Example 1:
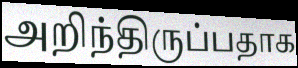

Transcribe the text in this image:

அறிந்திருப்பதாக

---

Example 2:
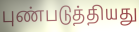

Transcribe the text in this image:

புண்படுத்தியது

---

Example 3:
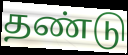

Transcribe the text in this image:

தண்டு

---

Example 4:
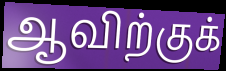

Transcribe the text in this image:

ஆவிற்குக்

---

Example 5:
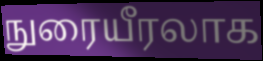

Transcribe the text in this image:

நுரையீரலாக